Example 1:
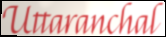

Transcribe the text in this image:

Uttaranchal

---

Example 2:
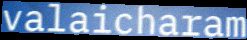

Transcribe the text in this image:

valaicharam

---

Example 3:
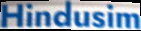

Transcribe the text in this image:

Hindusim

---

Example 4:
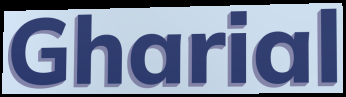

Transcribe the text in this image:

Gharial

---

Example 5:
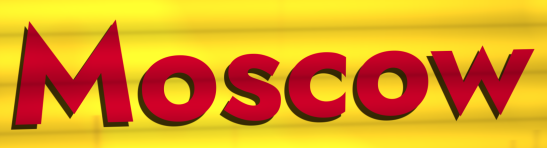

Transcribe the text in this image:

Moscow